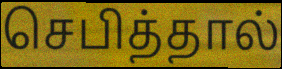
செபித்தால்